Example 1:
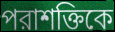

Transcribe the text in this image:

পরাশক্তিকে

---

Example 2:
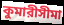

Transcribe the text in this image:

কুমারীসীমা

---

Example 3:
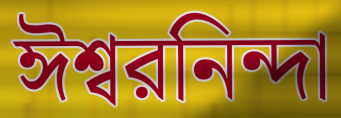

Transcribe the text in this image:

ঈশ্বরনিন্দা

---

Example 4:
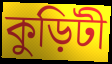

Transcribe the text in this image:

কুড়িটী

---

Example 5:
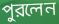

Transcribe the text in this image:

পুরলেন